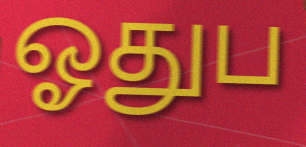
ஓதுப